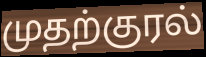
முதற்குரல்